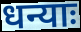
धन्याः